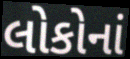
લોકોનાં